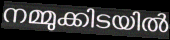
നമ്മുക്കിടയിൽ